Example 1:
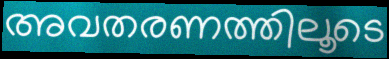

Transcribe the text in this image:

അവതരണത്തിലൂടെ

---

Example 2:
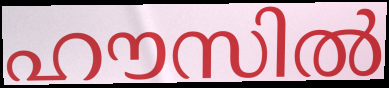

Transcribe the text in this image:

ഹൗസിൽ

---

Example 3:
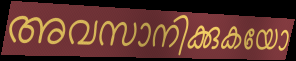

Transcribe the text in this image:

അവസാനിക്കുകയോ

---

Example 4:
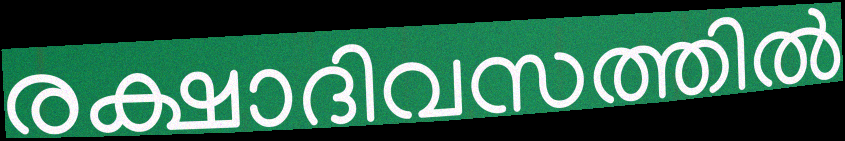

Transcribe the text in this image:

രക്ഷാദിവസത്തിൽ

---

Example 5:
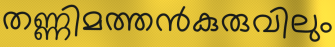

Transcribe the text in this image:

തണ്ണിമത്തൻകുരുവിലും